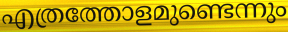
എത്രത്തോളമുണ്ടെന്നും